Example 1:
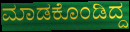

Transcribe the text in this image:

ಮಾಡಕೊಂಡಿದ್ದ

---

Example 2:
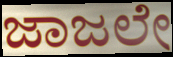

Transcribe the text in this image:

ಜಾಜಲೇ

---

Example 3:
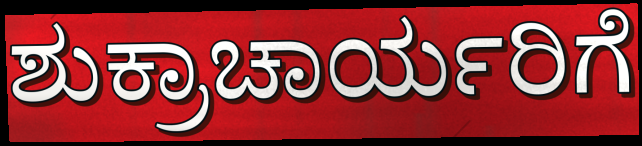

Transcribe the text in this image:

ಶುಕ್ರಾಚಾರ್ಯರಿಗೆ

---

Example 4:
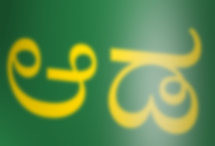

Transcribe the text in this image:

ಆಡ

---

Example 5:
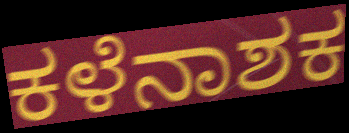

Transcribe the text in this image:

ಕಳೆನಾಶಕ